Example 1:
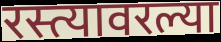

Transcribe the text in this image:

रस्त्यावरल्या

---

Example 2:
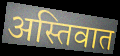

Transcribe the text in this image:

अस्तिवात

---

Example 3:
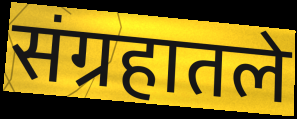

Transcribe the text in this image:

संग्रहातले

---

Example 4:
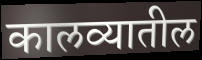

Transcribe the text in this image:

कालव्यातील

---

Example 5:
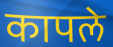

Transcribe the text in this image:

कापले